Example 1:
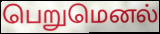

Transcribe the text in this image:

பெறுமெனல்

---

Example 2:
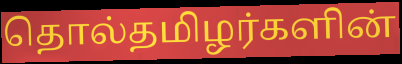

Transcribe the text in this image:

தொல்தமிழர்களின்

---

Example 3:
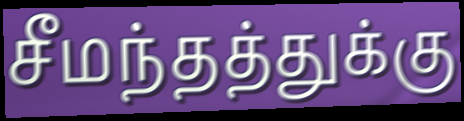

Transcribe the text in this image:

சீமந்தத்துக்கு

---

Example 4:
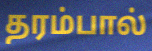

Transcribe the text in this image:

தரம்பால்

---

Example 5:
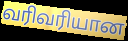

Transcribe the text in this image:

வரிவரியான